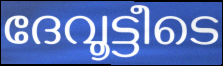
ദേവൂട്ടീടെ